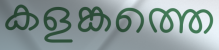
കളങ്കത്തെ